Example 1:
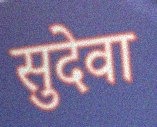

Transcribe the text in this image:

सुदेवा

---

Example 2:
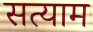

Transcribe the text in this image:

सत्याम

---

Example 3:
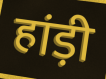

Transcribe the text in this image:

हांड़ी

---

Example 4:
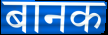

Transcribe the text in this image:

बानक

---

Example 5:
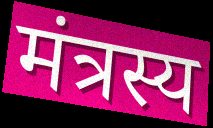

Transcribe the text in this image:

मंत्रस्य